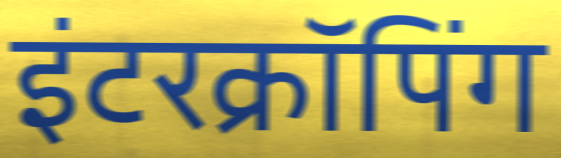
इंटरक्रॉपिंग